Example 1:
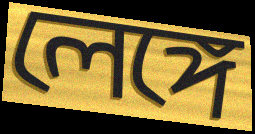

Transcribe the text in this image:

লেঙ্গে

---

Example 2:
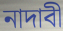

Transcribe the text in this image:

নাদাবী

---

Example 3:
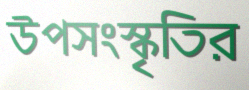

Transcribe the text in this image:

উপসংস্কৃতির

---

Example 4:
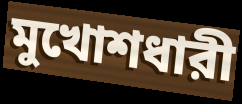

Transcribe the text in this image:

মুখোশধারী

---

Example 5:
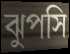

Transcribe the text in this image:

ঝুপসি